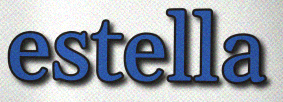
estella